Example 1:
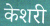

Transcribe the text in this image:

केशरी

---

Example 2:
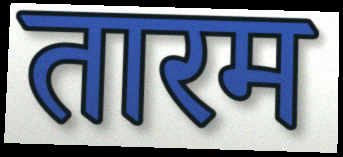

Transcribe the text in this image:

तारम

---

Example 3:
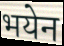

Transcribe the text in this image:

भयेन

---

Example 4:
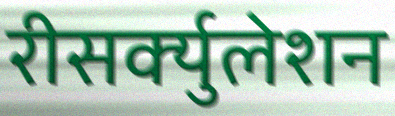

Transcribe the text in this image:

रीसर्क्युलेशन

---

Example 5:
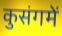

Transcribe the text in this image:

कुसंगमें